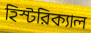
হিস্টরিক্যাল